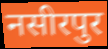
नसीरपुर